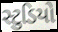
સ્ટુડિયો